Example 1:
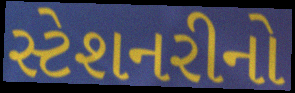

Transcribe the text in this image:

સ્ટેશનરીનો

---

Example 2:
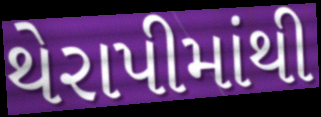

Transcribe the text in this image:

થેરાપીમાંથી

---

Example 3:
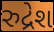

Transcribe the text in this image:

રુદ્રેશ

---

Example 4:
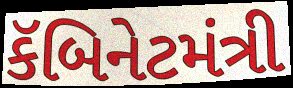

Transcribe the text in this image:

કૅબિનેટમંત્રી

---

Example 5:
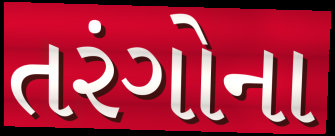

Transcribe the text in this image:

તરંગોના